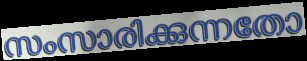
സംസാരിക്കുന്നതോ